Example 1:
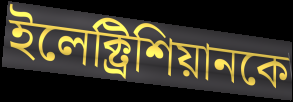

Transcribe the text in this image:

ইলেক্ট্রিশিয়ানকে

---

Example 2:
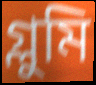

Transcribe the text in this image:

গ্লুমি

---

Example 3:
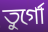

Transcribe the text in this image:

তুর্গো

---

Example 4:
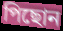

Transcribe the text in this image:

পিছোন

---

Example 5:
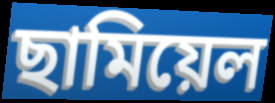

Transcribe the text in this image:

ছামিয়েল